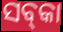
ସବ୍‌କା